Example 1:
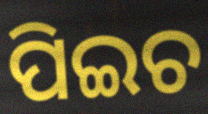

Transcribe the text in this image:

ପିଇଚ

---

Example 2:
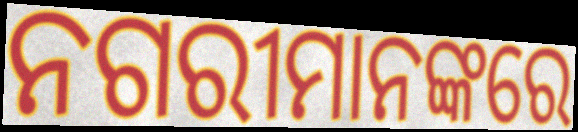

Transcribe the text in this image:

ନଗରୀମାନଙ୍କରେ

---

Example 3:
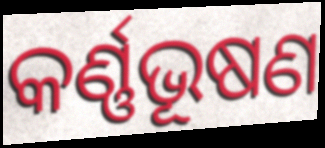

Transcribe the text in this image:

କର୍ଣ୍ଣଭୂଷଣ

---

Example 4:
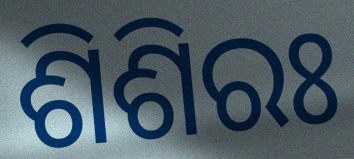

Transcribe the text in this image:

ଶିଶିରଃ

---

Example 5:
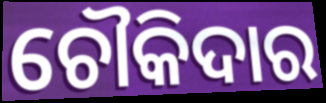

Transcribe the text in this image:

ଚୌକିଦାର